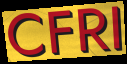
CFRI